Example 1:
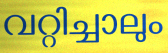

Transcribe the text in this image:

വറ്റിച്ചാലും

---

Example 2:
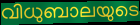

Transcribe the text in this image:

വിധുബാലയുടെ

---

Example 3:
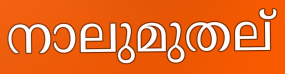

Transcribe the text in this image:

നാലുമുതല്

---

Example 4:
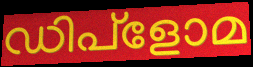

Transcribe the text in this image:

ഡിപ്ളോമ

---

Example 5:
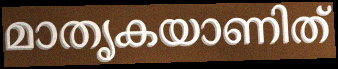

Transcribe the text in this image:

മാതൃകയാണിത്